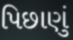
પિછાણું